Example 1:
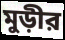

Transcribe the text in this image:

মুড়ীর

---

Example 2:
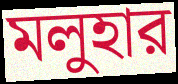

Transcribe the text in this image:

মলুহার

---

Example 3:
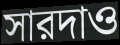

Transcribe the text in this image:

সারদাও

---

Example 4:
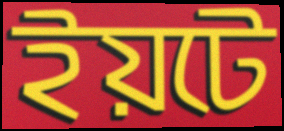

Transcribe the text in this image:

ইয়টে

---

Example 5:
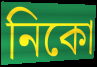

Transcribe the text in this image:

নিকো